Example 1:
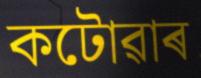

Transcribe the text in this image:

কটোৱাৰ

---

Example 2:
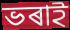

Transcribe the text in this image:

ভৰাই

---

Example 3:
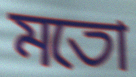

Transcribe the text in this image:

মতো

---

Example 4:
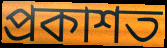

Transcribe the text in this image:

প্ৰকাশত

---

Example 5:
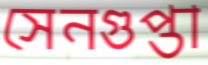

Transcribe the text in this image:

সেনগুপ্তা